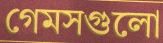
গেমসগুলো